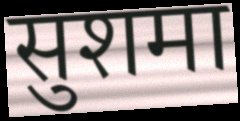
सुशमा